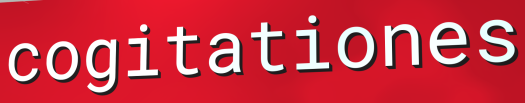
cogitationes